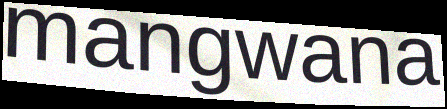
mangwana